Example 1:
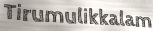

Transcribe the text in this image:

Tirumulikkalam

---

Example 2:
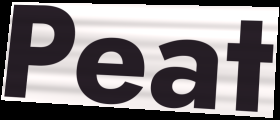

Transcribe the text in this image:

Peat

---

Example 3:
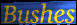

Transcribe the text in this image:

Bushes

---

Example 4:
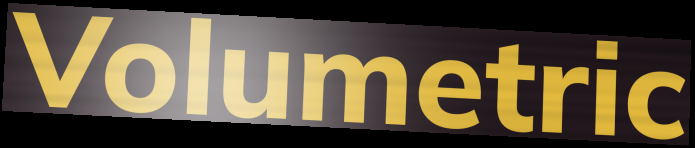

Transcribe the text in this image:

Volumetric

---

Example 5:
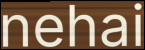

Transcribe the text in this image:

nehai